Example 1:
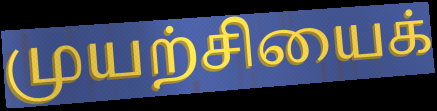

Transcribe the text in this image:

முயற்சியைக்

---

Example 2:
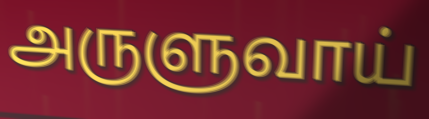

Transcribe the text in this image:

அருளுவாய்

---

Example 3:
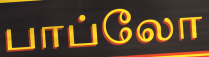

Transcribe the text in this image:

பாப்லோ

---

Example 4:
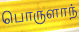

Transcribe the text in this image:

பொருளாந்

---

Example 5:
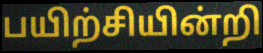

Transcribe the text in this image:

பயிற்சியின்றி